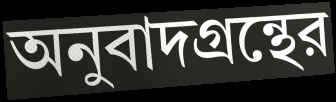
অনুবাদগ্রন্থের